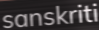
sanskriti